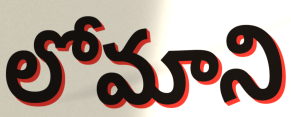
లోమాని